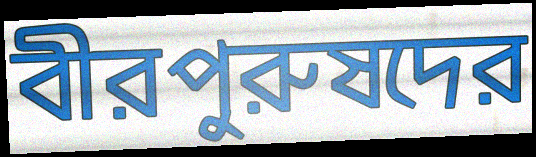
বীরপুরুষদের